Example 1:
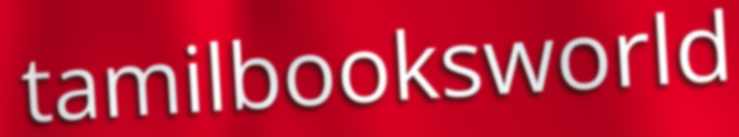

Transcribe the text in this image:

tamilbooksworld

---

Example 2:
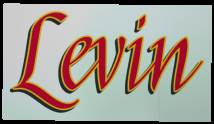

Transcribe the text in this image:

Levin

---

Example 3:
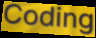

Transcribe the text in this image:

Coding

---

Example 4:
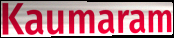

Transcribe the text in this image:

Kaumaram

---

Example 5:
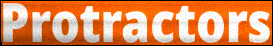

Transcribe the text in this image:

Protractors